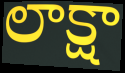
లాక్షా